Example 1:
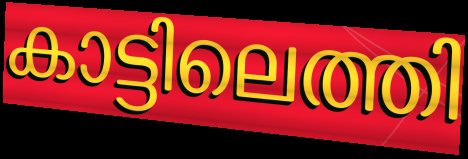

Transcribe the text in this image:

കാട്ടിലെത്തി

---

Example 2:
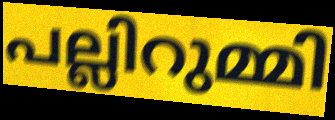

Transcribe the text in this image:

പല്ലിറുമ്മി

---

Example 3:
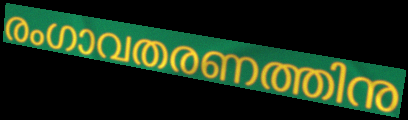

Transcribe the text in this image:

രംഗാവതരണത്തിനു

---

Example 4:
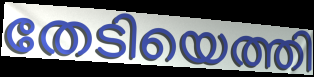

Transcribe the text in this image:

തേടിയെത്തി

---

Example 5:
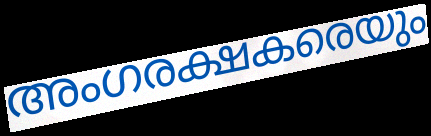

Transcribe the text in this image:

അംഗരക്ഷകരെയും